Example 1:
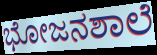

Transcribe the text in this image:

ಭೋಜನಶಾಲೆ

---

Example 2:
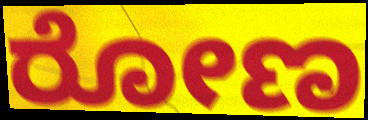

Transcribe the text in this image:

ರೋಣ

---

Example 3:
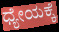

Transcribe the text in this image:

ಧ್ಯೇಯಕ್ಕೆ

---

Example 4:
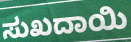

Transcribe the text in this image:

ಸುಖದಾಯಿ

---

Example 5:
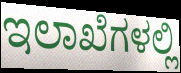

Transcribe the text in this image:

ಇಲಾಖೆಗಳಲ್ಲಿ